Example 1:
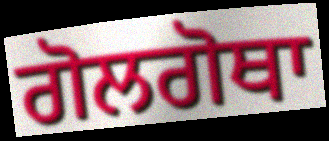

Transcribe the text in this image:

ਗੋਲਗੋਥਾ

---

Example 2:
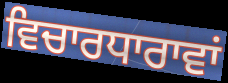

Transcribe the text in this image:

ਵਿਚਾਰਧਾਰਾਵਾਂ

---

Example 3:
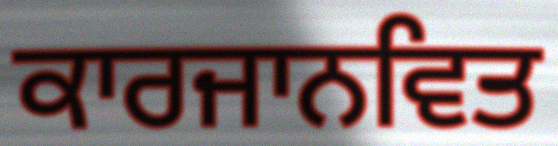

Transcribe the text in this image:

ਕਾਰਜਾਨਵਿਤ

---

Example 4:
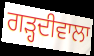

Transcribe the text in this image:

ਗਡ਼੍ਹਦੀਵਾਲਾ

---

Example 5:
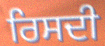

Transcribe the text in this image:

ਰਿਸਦੀ